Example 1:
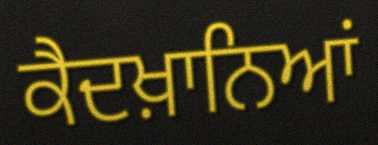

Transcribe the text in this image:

ਕੈਦਖ਼ਾਨਿਆਂ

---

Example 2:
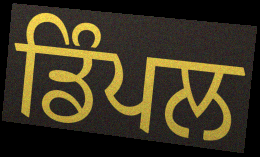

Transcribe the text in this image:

ਡਿੰਪਲ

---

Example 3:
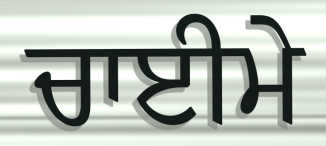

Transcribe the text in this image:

ਚਾਈਮੇ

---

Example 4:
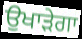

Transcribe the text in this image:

ਉਖਾੜੇਗਾ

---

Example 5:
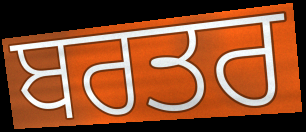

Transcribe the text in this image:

ਬਰਤਰ